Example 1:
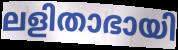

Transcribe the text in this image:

ലളിതാഭായി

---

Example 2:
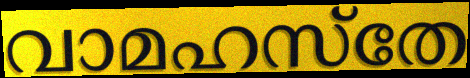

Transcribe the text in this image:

വാമഹസ്തേ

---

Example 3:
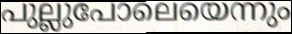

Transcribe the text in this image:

പുല്ലുപോലെയെന്നും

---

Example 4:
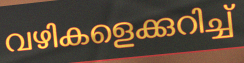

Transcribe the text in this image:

വഴികളെക്കുറിച്ച്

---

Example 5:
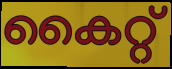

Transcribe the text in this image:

കൈറ്റ്